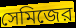
সেমিজের